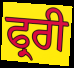
ਫ੍ਰਰੀ